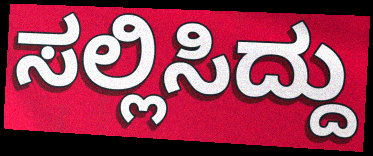
ಸಲ್ಲಿಸಿದ್ದು